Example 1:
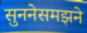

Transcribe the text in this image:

सुननेसमझने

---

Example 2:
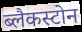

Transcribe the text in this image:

ब्लैकस्टोन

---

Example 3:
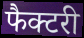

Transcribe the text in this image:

फैक्टरी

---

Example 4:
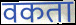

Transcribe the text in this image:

वकता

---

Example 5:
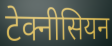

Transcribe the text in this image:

टेक्नीसियन